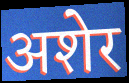
अशेर